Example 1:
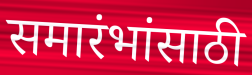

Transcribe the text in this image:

समारंभांसाठी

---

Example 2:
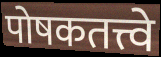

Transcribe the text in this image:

पोषकतत्त्वे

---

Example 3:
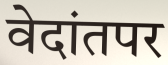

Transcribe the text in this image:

वेदांतपर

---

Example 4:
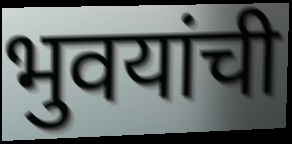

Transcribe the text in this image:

भुवयांची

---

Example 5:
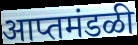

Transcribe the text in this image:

आप्तमंडळी